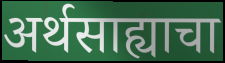
अर्थसाह्याचा